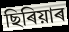
ছিৰিয়াৰ